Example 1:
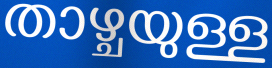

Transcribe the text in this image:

താഴ്ചയുള്ള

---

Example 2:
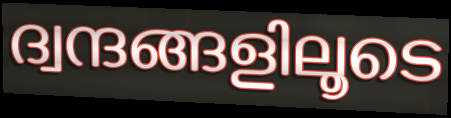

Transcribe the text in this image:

ദ്വന്ദങ്ങളിലൂടെ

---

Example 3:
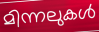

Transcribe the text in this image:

മിന്നലുകൾ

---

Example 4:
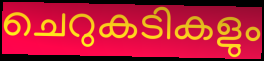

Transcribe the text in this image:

ചെറുകടികളും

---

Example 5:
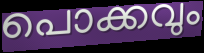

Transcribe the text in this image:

പൊക്കവും